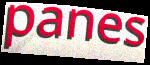
panes